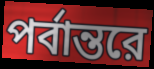
পর্বান্তরে